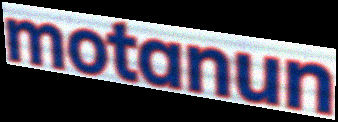
motanun